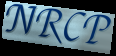
NRCP